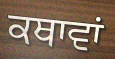
ਕਥਾਵਾਂ